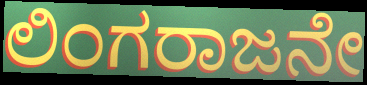
ಲಿಂಗರಾಜನೇ